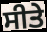
ਸੀਤੇ